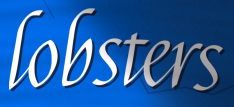
lobsters